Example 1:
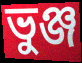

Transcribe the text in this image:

ভুঞ্জ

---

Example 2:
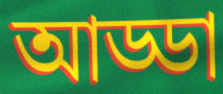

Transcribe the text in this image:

আড্ডা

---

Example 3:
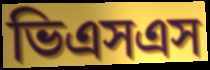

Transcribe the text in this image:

ভিএসএস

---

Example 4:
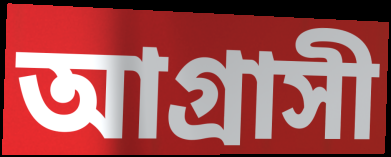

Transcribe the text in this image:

আগ্রাসী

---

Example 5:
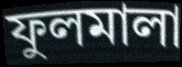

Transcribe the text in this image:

ফুলমালা